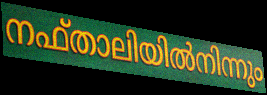
നഫ്താലിയിൽനിന്നും